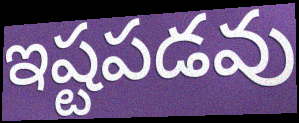
ఇష్టపడవు